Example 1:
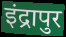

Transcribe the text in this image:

इंद्रापुर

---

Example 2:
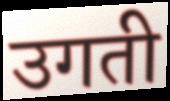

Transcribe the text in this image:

उगती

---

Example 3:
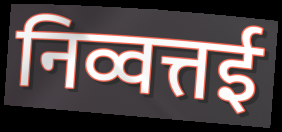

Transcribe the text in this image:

निव्वत्तई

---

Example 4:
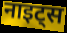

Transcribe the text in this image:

नाइट्स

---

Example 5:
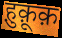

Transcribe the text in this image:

ह़ुक़ूक़